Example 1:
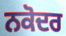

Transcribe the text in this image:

ਨਕੋਦਰ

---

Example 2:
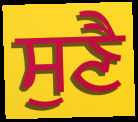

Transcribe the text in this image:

ਸੁਣੈ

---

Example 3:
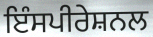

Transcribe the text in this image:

ਇੰਸਪੀਰੇਸ਼ਨਲ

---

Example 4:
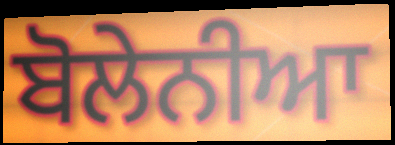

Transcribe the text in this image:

ਬੋਲੇਨੀਆ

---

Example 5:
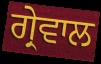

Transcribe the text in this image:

ਗ੍ਰੇਵਾਲ